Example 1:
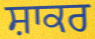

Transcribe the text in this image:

ਸ਼ਾਕਰ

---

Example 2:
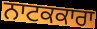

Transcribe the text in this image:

ਨਾਟਕਕਾਰਾ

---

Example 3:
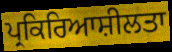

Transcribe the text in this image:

ਪ੍ਰਕਿਰਿਆਸ਼ੀਲਤਾ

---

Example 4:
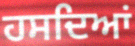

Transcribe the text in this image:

ਹਸਦਿਆਂ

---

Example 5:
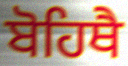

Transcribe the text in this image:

ਬੋਹਿਥੈ